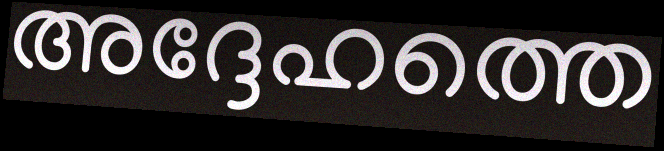
അദ്ദേഹത്തെ